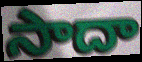
సాదా